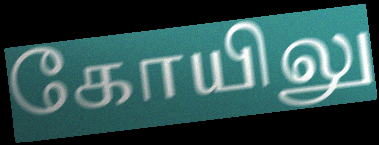
கோயிலு